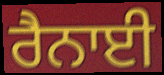
ਰੈਨਾਈ